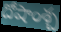
దోషాంశ్చ